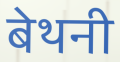
बेथनी